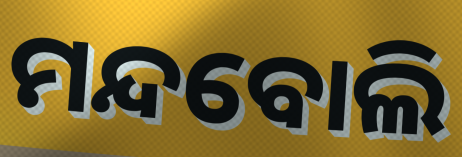
ମନ୍ଦବୋଲି